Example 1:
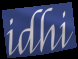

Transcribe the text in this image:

idhi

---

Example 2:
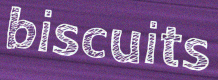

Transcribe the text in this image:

biscuits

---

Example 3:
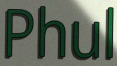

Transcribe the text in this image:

Phul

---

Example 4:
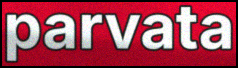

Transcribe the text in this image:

parvata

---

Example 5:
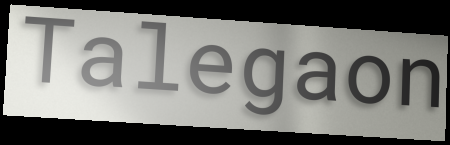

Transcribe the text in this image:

Talegaon